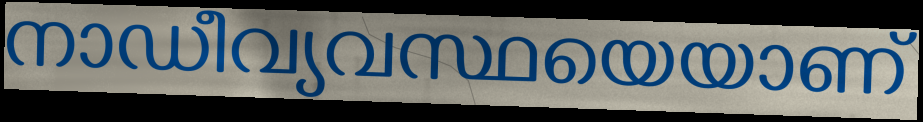
നാഡീവ്യവസ്ഥയെയാണ്